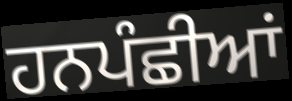
ਹਨਪੰਛੀਆਂ